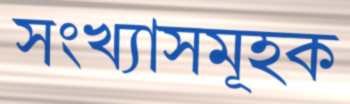
সংখ্যাসমূহক